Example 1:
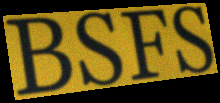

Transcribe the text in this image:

BSFS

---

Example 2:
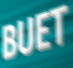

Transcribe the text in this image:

BUET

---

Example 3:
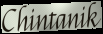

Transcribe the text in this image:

Chintanik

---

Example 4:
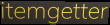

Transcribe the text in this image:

itemgetter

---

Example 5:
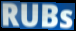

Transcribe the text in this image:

RUBs